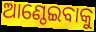
ଆଣ୍ଠେଇବାକୁ